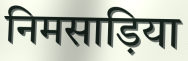
निमसाड़िया